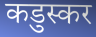
कडुस्कर